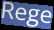
Rege